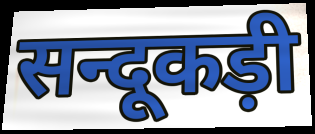
सन्दूकड़ी